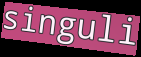
singuli